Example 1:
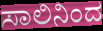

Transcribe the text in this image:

ಸಾಲಿನಿಂದ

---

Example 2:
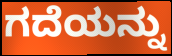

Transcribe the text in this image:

ಗದೆಯನ್ನು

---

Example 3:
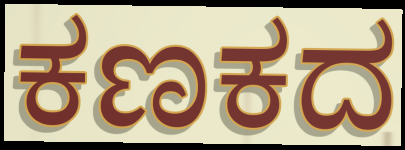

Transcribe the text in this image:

ಕಣಕದ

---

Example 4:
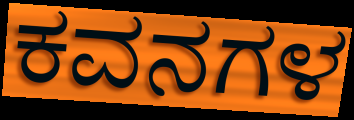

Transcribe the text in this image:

ಕವನಗಳ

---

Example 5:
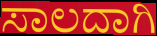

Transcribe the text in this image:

ಸಾಲದಾಗಿ